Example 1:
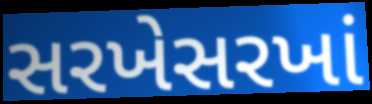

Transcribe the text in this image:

સરખેસરખાં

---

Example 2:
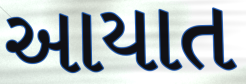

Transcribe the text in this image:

આયાત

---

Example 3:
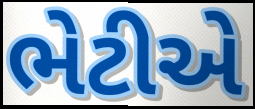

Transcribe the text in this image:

ભેટીએ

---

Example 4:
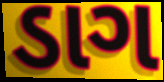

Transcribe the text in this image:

ડાગ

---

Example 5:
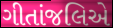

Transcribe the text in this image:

ગીતાંજલિએ